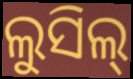
ଲୁସିଲ୍